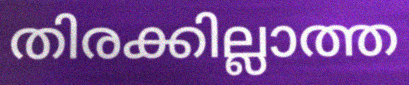
തിരക്കില്ലാത്ത